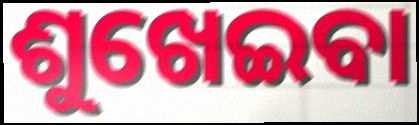
ଶୁଖେଇବା